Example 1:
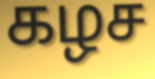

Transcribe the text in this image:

கழச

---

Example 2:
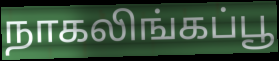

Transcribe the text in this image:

நாகலிங்கப்பூ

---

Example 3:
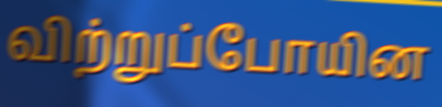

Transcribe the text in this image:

விற்றுப்போயின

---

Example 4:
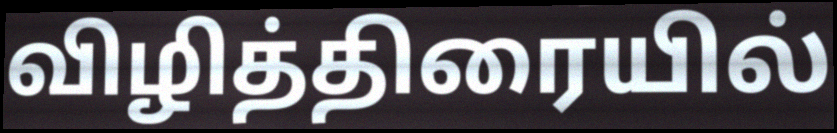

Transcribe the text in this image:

விழித்திரையில்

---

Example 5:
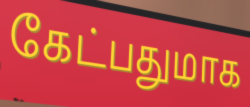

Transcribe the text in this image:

கேட்பதுமாக